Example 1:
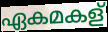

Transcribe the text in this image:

ഏകമകള്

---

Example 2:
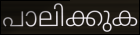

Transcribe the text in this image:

പാലിക്കുക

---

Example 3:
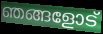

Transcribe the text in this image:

ഞങ്ങളോട്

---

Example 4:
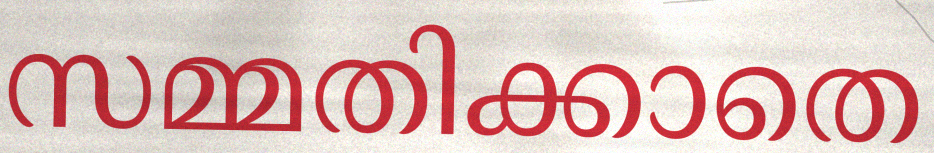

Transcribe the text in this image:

സമ്മതിക്കാതെ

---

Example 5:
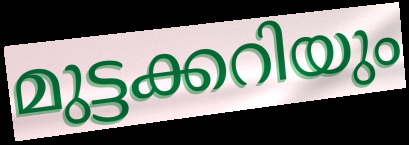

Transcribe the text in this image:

മുട്ടക്കറിയും